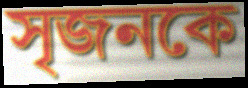
সৃজনকে